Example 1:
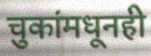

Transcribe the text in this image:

चुकांमधूनही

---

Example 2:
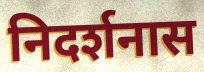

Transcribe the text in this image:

निदर्शनास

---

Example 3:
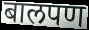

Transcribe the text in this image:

बालपण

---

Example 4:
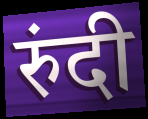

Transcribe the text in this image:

रुंदी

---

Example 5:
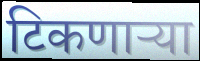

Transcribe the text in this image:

टिकणाऱ्या